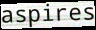
aspires